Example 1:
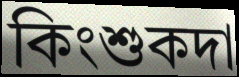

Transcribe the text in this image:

কিংশুকদা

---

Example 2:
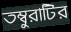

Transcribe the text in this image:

তম্বুরাটির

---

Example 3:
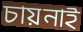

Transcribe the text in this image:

চায়নাই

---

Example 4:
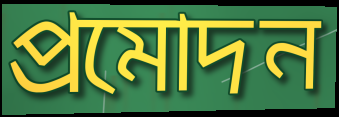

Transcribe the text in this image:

প্রমোদন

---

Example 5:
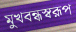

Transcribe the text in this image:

মুখবন্ধস্বরূপ